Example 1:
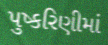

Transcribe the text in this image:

પુષ્કરિણીમાં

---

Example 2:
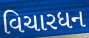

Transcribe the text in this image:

વિચારધન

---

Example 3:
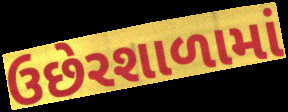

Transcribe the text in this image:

ઉછેરશાળામાં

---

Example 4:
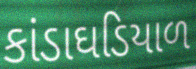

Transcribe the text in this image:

કાંડાઘડિયાળ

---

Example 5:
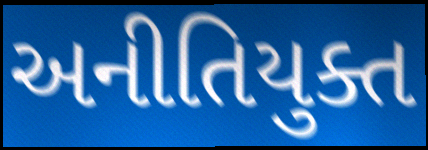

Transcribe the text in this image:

અનીતિયુક્ત